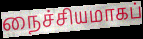
நைச்சியமாகப்